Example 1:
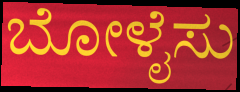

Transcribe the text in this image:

ಬೋಳೈಸು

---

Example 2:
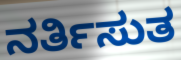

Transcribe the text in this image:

ನರ್ತಿಸುತ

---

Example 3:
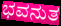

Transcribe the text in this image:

ಭವನುತ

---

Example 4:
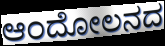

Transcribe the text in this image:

ಆಂದೋಲನದ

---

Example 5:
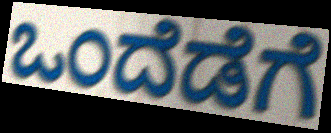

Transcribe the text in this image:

ಒಂದೆಡೆಗೆ